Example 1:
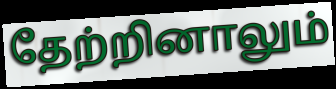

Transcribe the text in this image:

தேற்றினாலும்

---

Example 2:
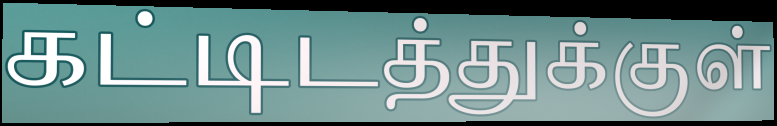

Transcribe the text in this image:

கட்டிடத்துக்குள்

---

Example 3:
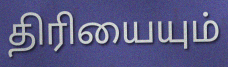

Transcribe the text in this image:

திரியையும்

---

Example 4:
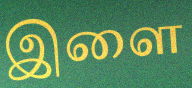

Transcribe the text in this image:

இளை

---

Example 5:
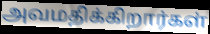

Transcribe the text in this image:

அவமதிக்கிறார்கள்